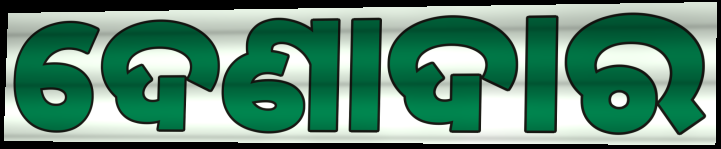
ଦେଣାଦାର